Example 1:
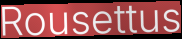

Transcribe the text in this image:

Rousettus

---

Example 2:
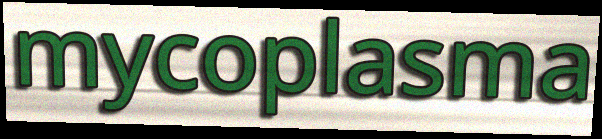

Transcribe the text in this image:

mycoplasma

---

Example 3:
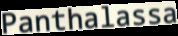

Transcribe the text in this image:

Panthalassa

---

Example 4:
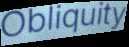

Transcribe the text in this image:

Obliquity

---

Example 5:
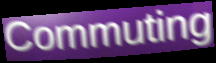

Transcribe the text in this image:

Commuting